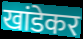
खांडेकर